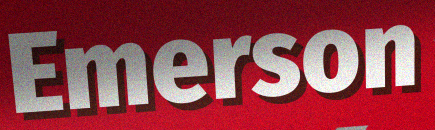
Emerson